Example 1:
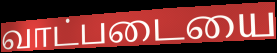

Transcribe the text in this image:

வாட்படையை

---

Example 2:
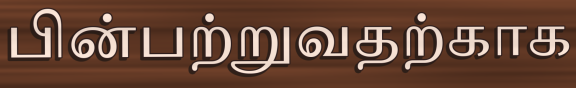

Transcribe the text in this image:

பின்பற்றுவதற்காக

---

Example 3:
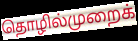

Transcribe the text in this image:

தொழில்முறைக்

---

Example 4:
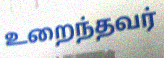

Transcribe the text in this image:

உறைந்தவர்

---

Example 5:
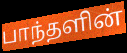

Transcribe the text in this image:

பாந்தளின்